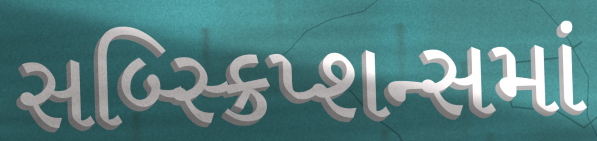
સબ્સ્ક્રિપ્શન્સમાં